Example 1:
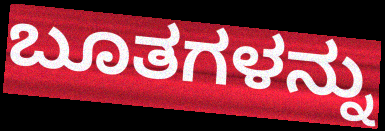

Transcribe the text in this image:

ಬೂತಗಳನ್ನು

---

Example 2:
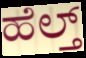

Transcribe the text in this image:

ಹೆಲ್ತ್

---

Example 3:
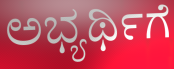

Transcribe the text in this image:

ಅಭ್ಯರ್ಥಿಗೆ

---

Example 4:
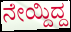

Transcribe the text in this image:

ನೇಯ್ದಿದ್ದ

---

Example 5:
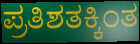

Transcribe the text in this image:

ಪ್ರತಿಶತಕ್ಕಿಂತ